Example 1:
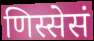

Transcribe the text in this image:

णिस्सेसं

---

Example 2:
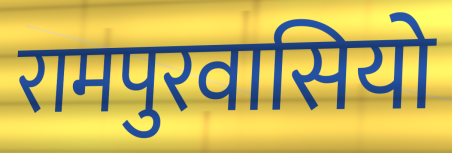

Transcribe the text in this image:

रामपुरवासियो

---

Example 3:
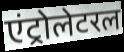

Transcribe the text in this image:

एंट्रोलेटरल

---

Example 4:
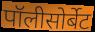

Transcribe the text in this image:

पॉलीसोर्बेट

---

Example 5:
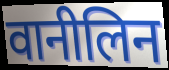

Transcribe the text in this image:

वानीलिन